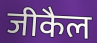
जीकैल